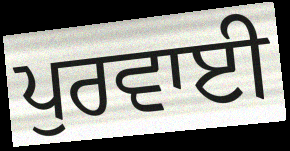
ਪੁਰਵਾਈ